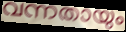
വന്നതായും